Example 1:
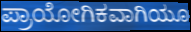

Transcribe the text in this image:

ಪ್ರಾಯೋಗಿಕವಾಗಿಯೂ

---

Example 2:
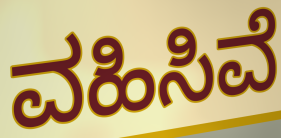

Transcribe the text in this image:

ವಹಿಸಿವೆ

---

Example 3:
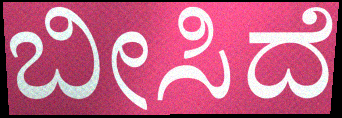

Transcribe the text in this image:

ಬೀಸಿದೆ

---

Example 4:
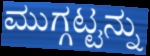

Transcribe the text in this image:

ಮುಗ್ಗಟ್ಟನ್ನು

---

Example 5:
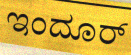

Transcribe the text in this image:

ಇಂದೂರ್